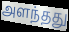
அளந்தது